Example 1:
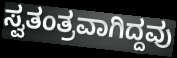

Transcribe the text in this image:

ಸ್ವತಂತ್ರವಾಗಿದ್ದವು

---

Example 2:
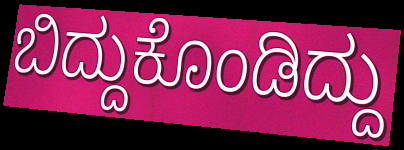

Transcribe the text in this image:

ಬಿದ್ದುಕೊಂಡಿದ್ದು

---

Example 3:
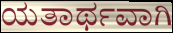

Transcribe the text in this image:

ಯತಾರ್ಥವಾಗಿ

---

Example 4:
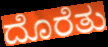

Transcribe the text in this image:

ದೊರೆತು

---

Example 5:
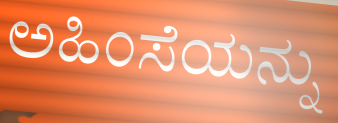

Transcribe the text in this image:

ಅಹಿಂಸೆಯನ್ನು